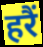
हरैं